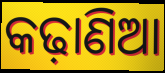
କଢ଼ାଣିଆ